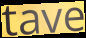
tave